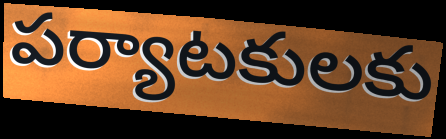
పర్యాటకులకు